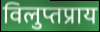
विलुप्तप्राय